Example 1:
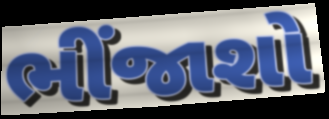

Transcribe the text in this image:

ભીંજાશો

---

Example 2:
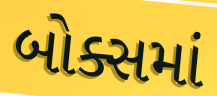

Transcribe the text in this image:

બોક્સમાં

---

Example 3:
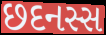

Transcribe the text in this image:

છદનસ્સ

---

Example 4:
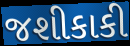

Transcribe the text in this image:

જશીકાકી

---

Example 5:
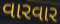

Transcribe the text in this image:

વારવાર